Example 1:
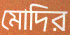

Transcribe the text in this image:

মোদির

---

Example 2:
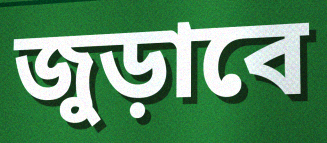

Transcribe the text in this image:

জুড়াবে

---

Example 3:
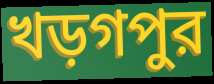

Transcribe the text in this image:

খড়গপুর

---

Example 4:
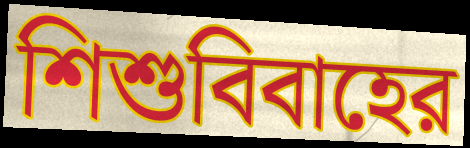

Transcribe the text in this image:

শিশুবিবাহের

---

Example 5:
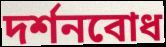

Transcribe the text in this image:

দর্শনবোধ